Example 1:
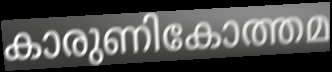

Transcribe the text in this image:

കാരുണികോത്തമ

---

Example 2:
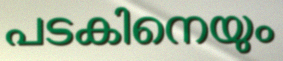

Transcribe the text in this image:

പടകിനെയും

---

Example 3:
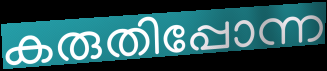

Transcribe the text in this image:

കരുതിപ്പോന്ന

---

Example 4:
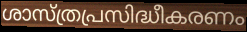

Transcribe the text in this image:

ശാസ്ത്രപ്രസിദ്ധീകരണം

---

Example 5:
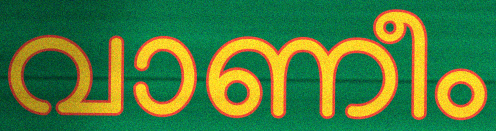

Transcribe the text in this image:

വാണീം